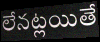
లేనట్లయితే